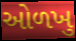
ઓળખુ